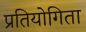
प्रतियोगिता